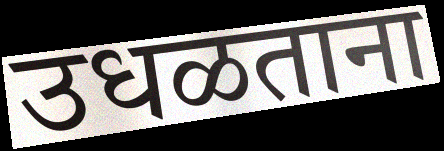
उधळताना